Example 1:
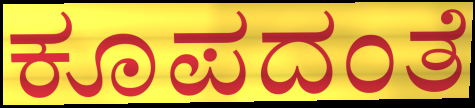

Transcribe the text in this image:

ಕೂಪದಂತೆ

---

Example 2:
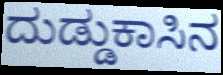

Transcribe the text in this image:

ದುಡ್ಡುಕಾಸಿನ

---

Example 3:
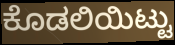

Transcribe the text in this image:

ಕೊಡಲಿಯಿಟ್ಟು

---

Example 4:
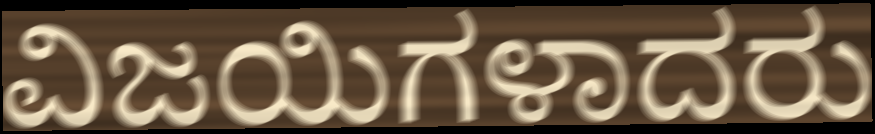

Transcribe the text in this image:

ವಿಜಯಿಗಳಾದರು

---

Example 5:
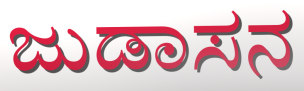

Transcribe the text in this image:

ಜುಡಾಸನ